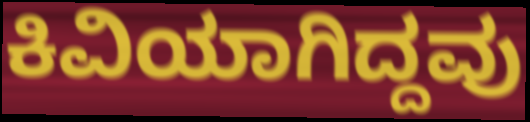
ಕಿವಿಯಾಗಿದ್ದವು